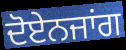
ਦੋਏਨਜਾਂਗ